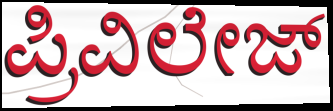
ಪ್ರಿವಿಲೇಜ್